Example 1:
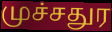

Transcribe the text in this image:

முச்சதுர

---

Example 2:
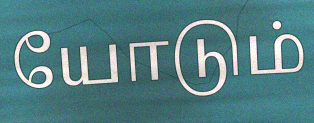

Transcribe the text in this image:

யோடும்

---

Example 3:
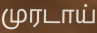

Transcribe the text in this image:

முரடாய்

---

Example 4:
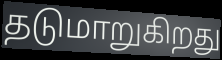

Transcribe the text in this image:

தடுமாறுகிறது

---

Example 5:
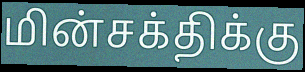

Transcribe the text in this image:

மின்சக்திக்கு